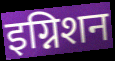
इग्निशन